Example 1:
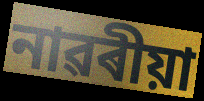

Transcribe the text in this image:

নাৱৰীয়া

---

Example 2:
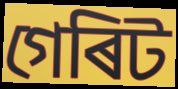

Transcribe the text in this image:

গেৰিট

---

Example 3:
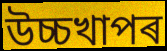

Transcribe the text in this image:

উচ্চখাপৰ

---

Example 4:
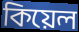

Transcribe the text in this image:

কিয়েল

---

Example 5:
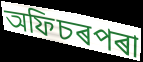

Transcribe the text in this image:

অফিচৰপৰা